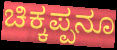
ಚಿಕ್ಕಪ್ಪನೂ